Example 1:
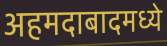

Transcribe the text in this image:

अहमदाबादमध्ये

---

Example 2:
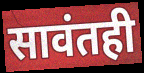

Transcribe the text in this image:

सावंतही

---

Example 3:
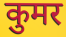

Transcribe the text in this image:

कुमर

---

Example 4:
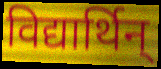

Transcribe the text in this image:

विद्यार्थिन्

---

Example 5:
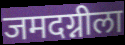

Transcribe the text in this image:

जमदग्नीला